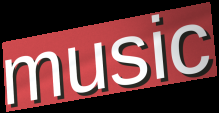
music